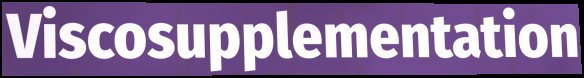
Viscosupplementation